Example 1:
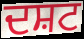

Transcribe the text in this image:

ਦਸ਼ਟ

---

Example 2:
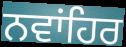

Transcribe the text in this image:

ਨਵਾਂਹਿਰ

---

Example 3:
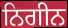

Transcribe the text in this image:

ਨਿਗੀਨ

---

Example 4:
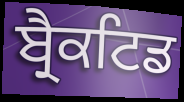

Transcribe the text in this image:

ਬ੍ਰੈਕਟਿਡ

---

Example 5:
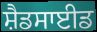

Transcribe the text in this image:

ਸ਼ੈਡਸਾਈਡ